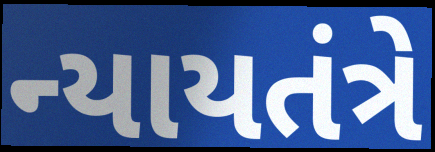
ન્યાયતંત્રે